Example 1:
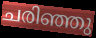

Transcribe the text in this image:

ചരിഞ്ഞു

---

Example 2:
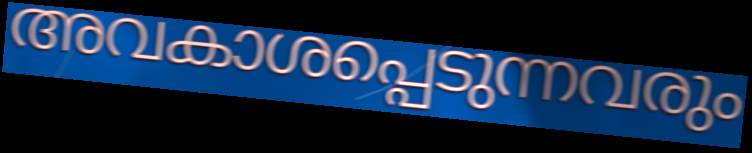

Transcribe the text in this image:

അവകാശപ്പെടുന്നവരും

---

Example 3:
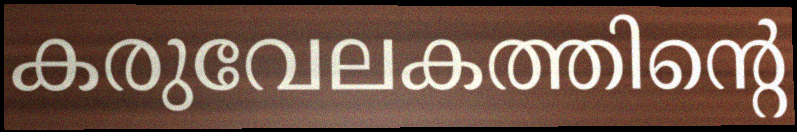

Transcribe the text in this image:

കരുവേലകത്തിന്റെ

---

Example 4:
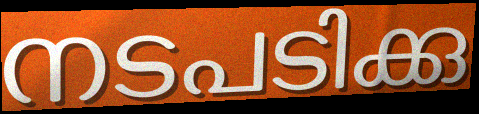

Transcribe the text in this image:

നടപടിക്കു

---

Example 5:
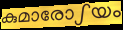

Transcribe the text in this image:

കുമാരോഽയം